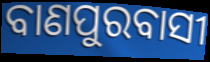
ବାଣପୁରବାସୀ